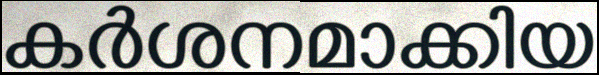
കർശനമാക്കിയ